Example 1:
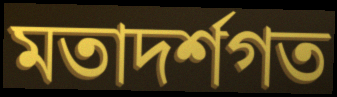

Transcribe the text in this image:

মতাদৰ্শগত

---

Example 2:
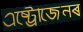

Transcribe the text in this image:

এষ্ট্ৰোজেনৰ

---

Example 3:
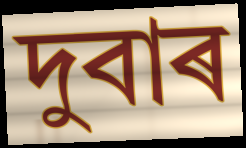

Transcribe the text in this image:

দুবাৰ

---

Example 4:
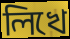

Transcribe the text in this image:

লিখে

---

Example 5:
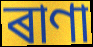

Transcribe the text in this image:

ৰাণা